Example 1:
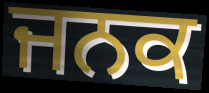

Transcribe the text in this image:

ਜਨਕ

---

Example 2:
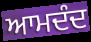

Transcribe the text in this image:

ਆਮਦੰਦ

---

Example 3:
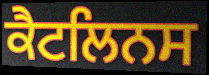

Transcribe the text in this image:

ਕੈਟਲਿਨਸ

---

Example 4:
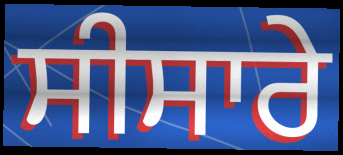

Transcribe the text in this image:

ਸੀਸਾਰੇ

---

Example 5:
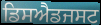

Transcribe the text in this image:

ਡਿਸਐਡਜਸਟ